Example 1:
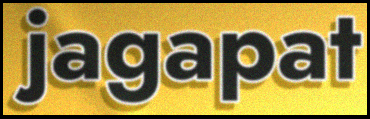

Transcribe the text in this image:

jagapat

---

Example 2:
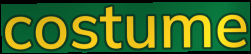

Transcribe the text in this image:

costume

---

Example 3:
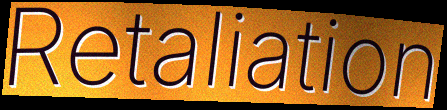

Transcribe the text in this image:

Retaliation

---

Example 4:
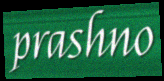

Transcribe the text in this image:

prashno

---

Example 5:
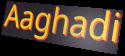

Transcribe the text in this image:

Aaghadi